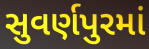
સુવર્ણપુરમાં